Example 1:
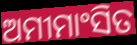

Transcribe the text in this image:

ଅମୀମାଂସିତ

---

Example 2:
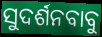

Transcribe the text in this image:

ସୁଦର୍ଶନବାବୁ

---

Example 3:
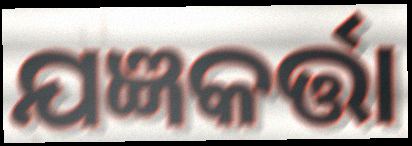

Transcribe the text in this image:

ଯଜ୍ଞକର୍ତ୍ତା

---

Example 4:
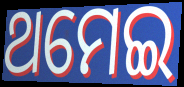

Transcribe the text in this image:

ଥମେଇ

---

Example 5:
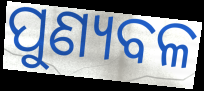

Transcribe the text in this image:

ପୁଣ୍ୟବଳ